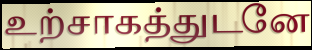
உற்சாகத்துடனே